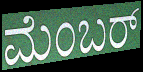
ಮೆಂಬರ್